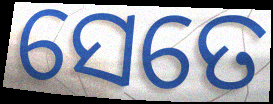
ସେତେ